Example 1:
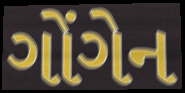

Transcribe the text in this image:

ગોંગેન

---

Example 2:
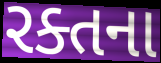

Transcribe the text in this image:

રક્તના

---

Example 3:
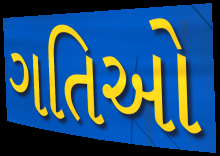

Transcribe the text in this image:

ગતિઓ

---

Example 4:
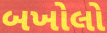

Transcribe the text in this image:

બખોલો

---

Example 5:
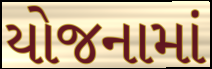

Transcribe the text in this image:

યોજનામાં